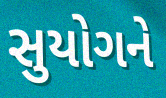
સુયોગને